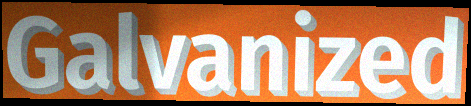
Galvanized